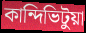
কান্দিভিটুয়া